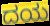
ದಯ